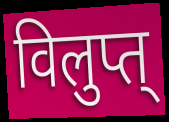
विलुप्त्